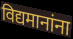
विद्यमानांना